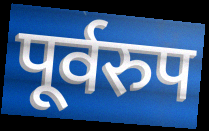
पूर्वरुप